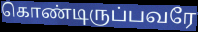
கொண்டிருப்பவரே